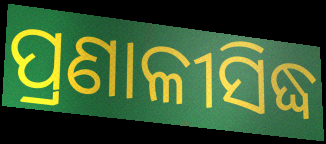
ପ୍ରଣାଳୀସିଦ୍ଧ